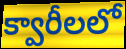
క్వారీలలో